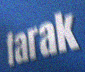
farak